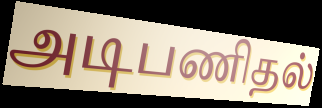
அடிபணிதல்